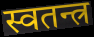
स्वतन्त्र